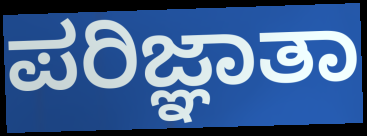
ಪರಿಜ್ಞಾತಾ